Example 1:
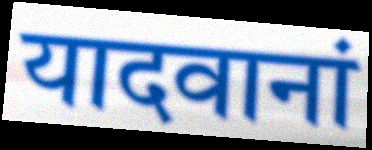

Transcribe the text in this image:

यादवानां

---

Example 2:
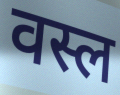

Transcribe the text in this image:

वस्ल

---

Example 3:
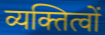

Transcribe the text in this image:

व्यक्तित्वों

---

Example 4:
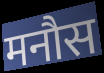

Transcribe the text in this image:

मनौस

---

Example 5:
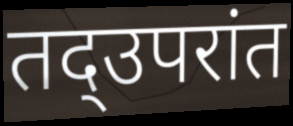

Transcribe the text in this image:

तद्उपरांत